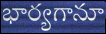
భార్యగానూ